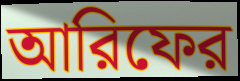
আরিফের